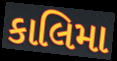
કાલિમા